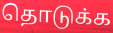
தொடுக்க